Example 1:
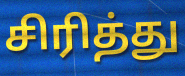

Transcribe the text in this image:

சிரித்து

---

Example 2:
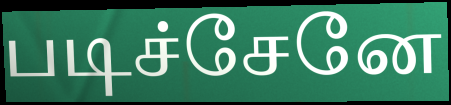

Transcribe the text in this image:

படிச்சேனே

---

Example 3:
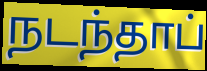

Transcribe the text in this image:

நடந்தாப்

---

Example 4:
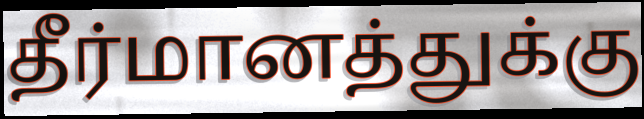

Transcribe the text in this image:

தீர்மானத்துக்கு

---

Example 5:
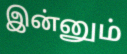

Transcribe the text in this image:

இன்னும்